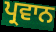
ਪ੍ਰਵਾਨ